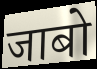
जाबो